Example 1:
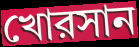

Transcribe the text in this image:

খোরসান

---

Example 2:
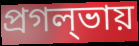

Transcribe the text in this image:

প্রগল্‌ভায়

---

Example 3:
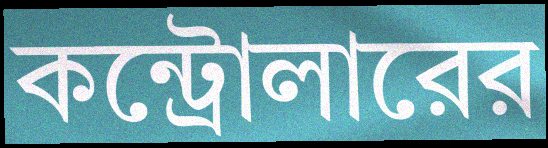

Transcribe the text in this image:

কন্ট্রোলারের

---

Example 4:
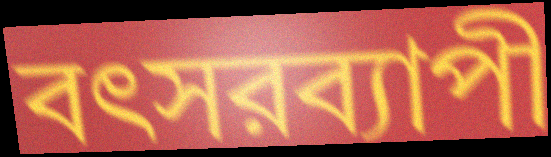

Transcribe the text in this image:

বৎসরব্যাপী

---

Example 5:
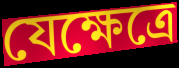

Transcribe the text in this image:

যেক্ষেত্রে